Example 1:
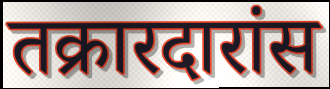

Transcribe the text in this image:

तक्रारदारांस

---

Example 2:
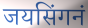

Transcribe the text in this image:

जयसिंगनं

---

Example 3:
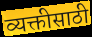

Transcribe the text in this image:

व्यक्तीसाठी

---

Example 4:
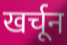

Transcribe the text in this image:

खर्चून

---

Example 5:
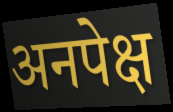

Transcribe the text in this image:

अनपेक्ष